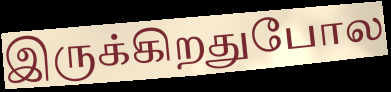
இருக்கிறதுபோல